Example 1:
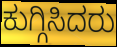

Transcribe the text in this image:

ಕುಗ್ಗಿಸಿದರು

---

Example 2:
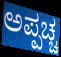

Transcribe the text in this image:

ಅಪ್ಪಚ್ಚ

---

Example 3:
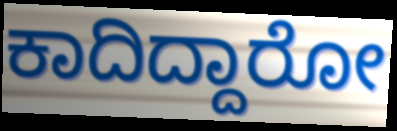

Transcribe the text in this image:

ಕಾದಿದ್ದಾರೋ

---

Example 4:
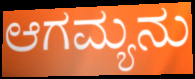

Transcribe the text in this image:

ಆಗಮ್ಯನು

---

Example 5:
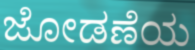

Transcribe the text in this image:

ಜೋಡಣೆಯ